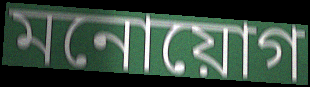
মনোয়োগ